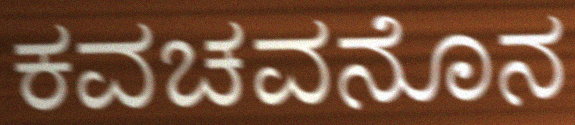
ಕವಚವನೊನ